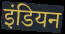
इंडियन